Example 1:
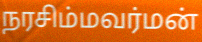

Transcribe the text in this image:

நரசிம்மவர்மன்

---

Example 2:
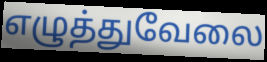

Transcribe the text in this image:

எழுத்துவேலை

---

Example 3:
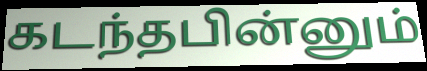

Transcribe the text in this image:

கடந்தபின்னும்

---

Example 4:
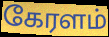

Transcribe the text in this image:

கேரளம்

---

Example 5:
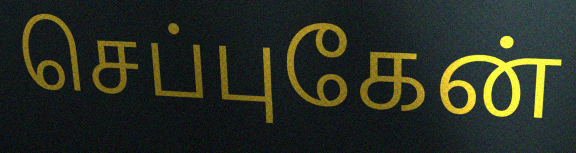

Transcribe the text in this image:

செப்புகேன்